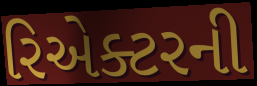
રિએક્ટરની